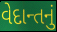
વેદાન્તનું